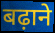
बढ़ाने